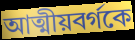
আত্মীয়বর্গকে